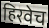
हिरवेच